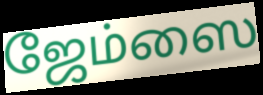
ஜேம்ஸை